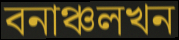
বনাঞ্চলখন